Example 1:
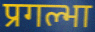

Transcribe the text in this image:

प्रगल्भा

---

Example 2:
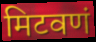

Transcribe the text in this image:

मिटवणं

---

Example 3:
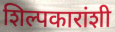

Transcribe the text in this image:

शिल्पकारांशी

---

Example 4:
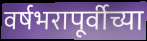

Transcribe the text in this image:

वर्षभरापूर्वीच्या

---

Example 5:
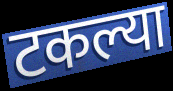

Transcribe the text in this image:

टकल्या